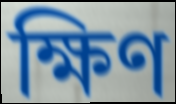
ক্ষিণ